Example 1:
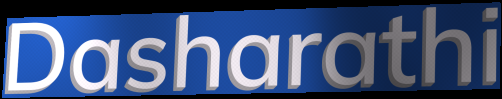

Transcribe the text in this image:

Dasharathi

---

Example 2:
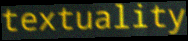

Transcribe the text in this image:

textuality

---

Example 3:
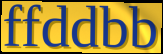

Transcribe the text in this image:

ffddbb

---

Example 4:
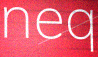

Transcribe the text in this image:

neq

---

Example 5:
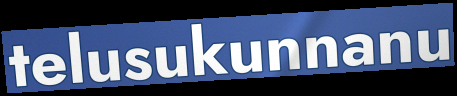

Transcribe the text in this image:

telusukunnanu